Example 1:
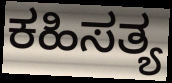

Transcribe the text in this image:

ಕಹಿಸತ್ಯ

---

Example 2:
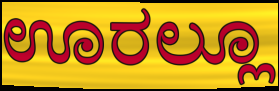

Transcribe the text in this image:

ಊರಲ್ಲೂ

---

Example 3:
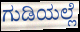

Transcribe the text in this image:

ಗುಡಿಯಲ್ಲೆ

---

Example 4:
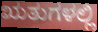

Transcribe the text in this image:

ಋತುಗಳಲ್ಲಿ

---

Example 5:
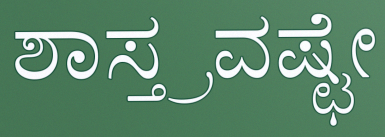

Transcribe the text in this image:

ಶಾಸ್ತ್ರವಷ್ಟೇ